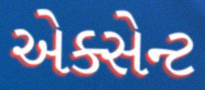
એક્સેન્ટ